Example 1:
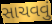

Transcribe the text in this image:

સાચવવું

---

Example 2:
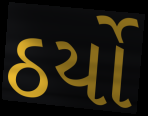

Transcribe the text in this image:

ઠર્યો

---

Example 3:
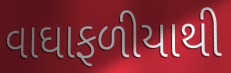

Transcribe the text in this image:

વાઘાફળીયાથી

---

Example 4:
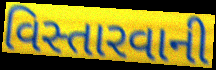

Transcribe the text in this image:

વિસ્તારવાની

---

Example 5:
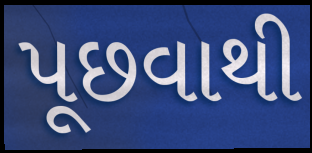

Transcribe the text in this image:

પૂછવાથી